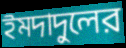
ইমদাদুলের